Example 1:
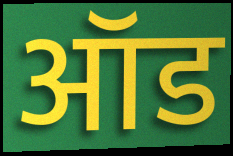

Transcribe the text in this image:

ऑड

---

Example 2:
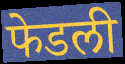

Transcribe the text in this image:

फेडली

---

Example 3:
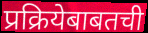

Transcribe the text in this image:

प्रक्रियेबाबतची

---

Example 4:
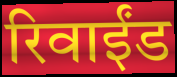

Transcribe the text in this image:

रिवाईंड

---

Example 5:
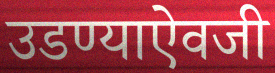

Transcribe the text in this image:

उडण्याऐवजी